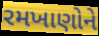
રમખાણોને